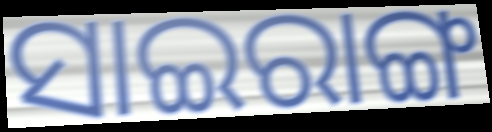
ସାଇରାଙ୍ଗ